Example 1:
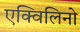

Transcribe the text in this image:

एक्विलिनो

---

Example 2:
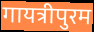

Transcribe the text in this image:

गायत्रीपुरम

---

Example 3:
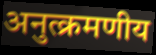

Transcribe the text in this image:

अनुत्क्रमणीय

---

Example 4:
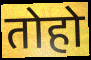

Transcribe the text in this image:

तोहो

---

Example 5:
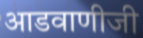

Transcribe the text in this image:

आडवाणीजी